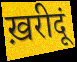
ख़रीदूं